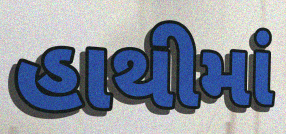
હાથીમાં